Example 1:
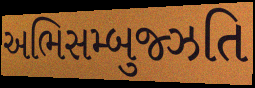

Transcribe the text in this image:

અભિસમ્બુજ્ઝતિ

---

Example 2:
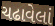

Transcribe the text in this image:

ચઢાવેલાં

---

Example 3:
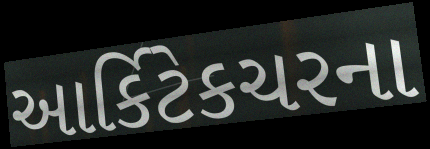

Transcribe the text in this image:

આર્કિટેકચરના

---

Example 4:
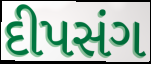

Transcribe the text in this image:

દીપસંગ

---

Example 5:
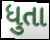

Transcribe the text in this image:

ધુતા